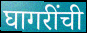
घागरींची